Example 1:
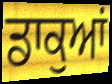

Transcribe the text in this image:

ਡਾਕੁਆਂ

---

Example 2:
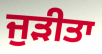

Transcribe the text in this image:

ਜੁੜੀਤਾ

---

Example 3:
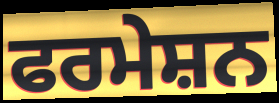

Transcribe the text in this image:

ਫਰਮੇਸ਼ਨ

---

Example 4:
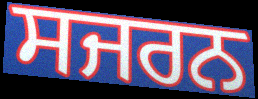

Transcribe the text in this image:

ਸਜਰਨ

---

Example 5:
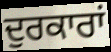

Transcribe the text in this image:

ਦੁਰਕਾਰਾਂ